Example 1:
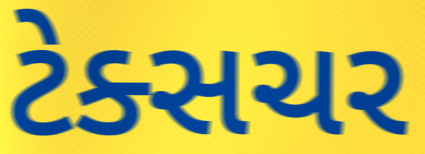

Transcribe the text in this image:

ટેક્સચર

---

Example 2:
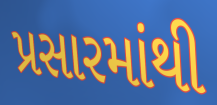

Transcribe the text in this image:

પ્રસારમાંથી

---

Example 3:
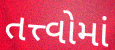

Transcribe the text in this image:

તત્ત્વોમાં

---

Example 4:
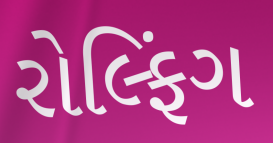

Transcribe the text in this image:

રોલ્ફિંગ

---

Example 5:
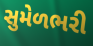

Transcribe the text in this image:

સુમેળભરી